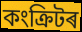
কংক্ৰিটৰ